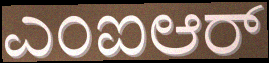
ಎಂಐಆರ್